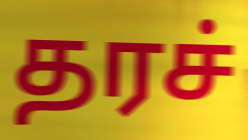
தரச்